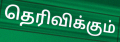
தெரிவிக்கும்